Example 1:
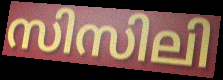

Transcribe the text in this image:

സിസിലി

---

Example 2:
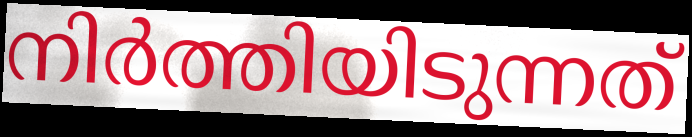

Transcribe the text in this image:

നിർത്തിയിടുന്നത്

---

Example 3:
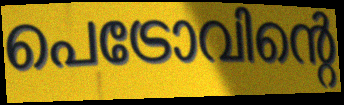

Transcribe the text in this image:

പെട്രോവിന്റെ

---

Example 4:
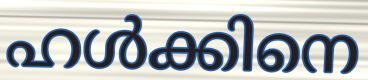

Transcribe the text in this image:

ഹൾക്കിനെ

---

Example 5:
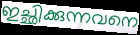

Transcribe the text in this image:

ഇച്ഛിക്കുന്നവനെ